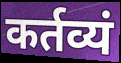
कर्तव्यं